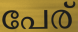
പേര്